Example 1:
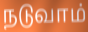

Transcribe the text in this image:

நடுவாம்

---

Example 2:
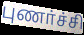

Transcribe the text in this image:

புணர்ச்சி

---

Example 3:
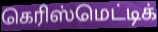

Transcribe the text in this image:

கெரிஸ்மெட்டிக்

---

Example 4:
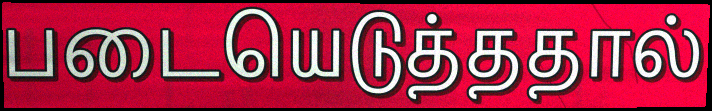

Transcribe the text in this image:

படையெடுத்ததால்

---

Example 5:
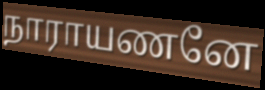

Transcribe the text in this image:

நாராயணனே